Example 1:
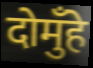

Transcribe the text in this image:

दोमुँहे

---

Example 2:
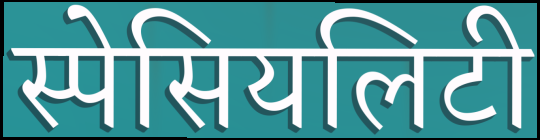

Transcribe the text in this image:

स्पेसियलिटी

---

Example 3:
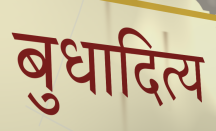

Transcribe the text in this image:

बुधादित्य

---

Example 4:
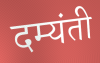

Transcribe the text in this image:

दम्यंती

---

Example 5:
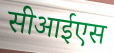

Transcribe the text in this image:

सीआईएस